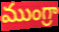
ముంగ్రా